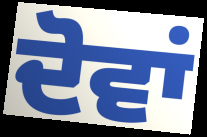
ਦੋਵਾਂ